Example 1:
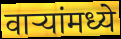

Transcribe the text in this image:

वाऱ्यांमध्ये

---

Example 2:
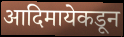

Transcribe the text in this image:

आदिमायेकडून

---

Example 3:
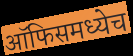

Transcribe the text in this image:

ऑफिसमध्येच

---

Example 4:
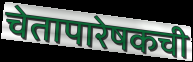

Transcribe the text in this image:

चेतापारेषकची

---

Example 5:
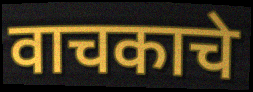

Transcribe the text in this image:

वाचकाचे